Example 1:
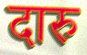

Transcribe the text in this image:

दारु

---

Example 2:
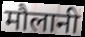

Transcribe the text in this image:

मौलानी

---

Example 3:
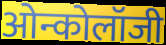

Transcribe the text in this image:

ओन्कोलॉजी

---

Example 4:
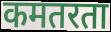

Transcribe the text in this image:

कमतरता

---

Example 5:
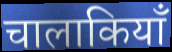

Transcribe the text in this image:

चालाकियाँ